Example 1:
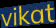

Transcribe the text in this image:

vikat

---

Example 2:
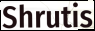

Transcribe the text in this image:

Shrutis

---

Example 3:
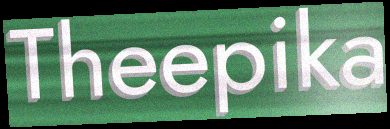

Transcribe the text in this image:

Theepika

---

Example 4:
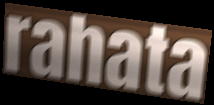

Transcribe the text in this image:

rahata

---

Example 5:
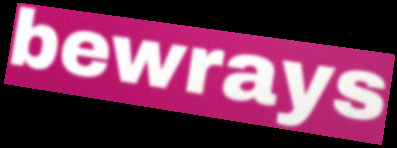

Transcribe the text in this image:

bewrays